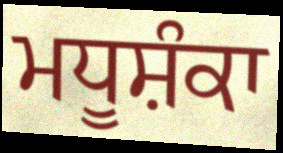
ਮਧੂਸ਼ੰਕਾ